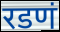
रडणं